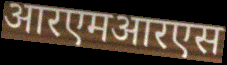
आरएमआरएस